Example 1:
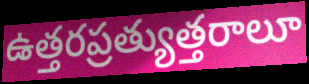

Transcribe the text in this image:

ఉత్తరప్రత్యుత్తరాలూ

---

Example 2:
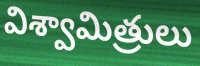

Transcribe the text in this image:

విశ్వామిత్రులు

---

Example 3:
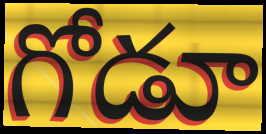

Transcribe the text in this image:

గోడూ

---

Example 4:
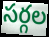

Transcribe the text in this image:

సర్గల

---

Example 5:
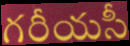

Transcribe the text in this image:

గరీయసీ